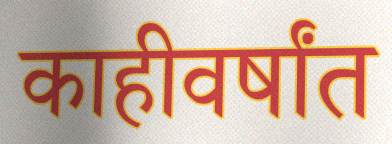
काहीवर्षांत